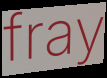
fray